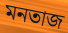
মনতাজ